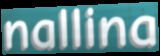
nallina